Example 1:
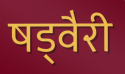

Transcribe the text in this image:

षड्वैरी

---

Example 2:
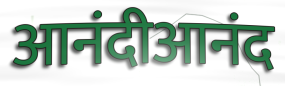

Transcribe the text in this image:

आनंदीआनंद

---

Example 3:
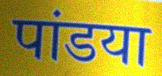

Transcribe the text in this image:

पांडया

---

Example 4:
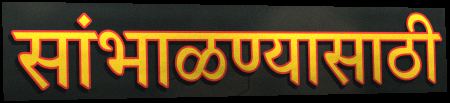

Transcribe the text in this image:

सांभाळण्यासाठी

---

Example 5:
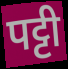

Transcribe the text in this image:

पट्टी